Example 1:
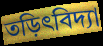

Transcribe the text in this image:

তড়িৎবিদ্যা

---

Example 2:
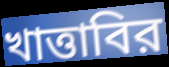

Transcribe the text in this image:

খাত্তাবির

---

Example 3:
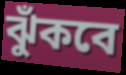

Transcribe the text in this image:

ঝুঁকবে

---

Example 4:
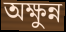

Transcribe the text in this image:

অক্ষুন্ন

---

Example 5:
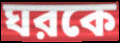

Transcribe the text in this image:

ঘরকে